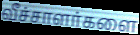
வீச்சாளர்களை